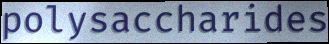
polysaccharides